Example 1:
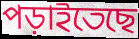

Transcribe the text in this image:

পড়াইতেছে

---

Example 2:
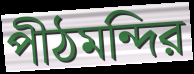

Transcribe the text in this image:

পীঠমন্দির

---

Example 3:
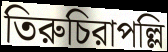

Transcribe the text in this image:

তিরুচিরাপল্লি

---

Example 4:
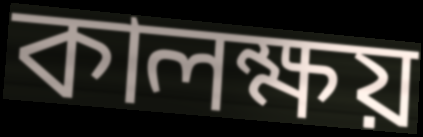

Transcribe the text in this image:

কালক্ষয়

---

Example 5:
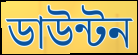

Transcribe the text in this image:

ডাউন্টন